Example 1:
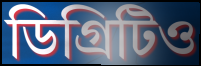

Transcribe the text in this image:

ডিগ্রিটিও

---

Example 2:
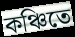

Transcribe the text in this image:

কঞ্চিতে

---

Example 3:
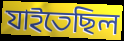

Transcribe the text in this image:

যাইতেছিল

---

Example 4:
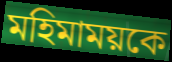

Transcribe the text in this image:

মহিমাময়কে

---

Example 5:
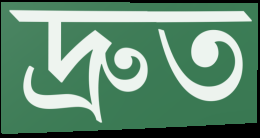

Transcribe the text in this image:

দ্রুত